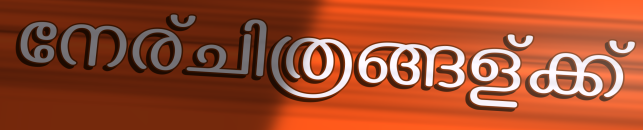
നേര്ചിത്രങ്ങള്ക്ക്